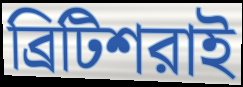
ব্রিটিশরাই